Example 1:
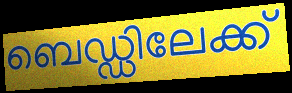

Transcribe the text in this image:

ബെഡ്ഡിലേക്ക്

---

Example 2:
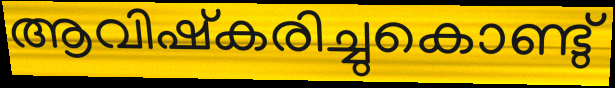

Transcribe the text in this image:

ആവിഷ്കരിച്ചുകൊണ്ടു്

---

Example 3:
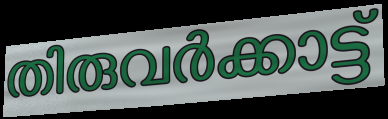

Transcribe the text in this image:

തിരുവർക്കാട്ട്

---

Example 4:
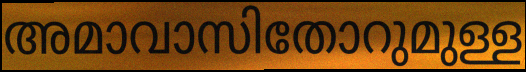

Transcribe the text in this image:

അമാവാസിതോറുമുള്ള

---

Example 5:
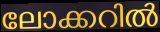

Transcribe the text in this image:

ലോക്കറിൽ